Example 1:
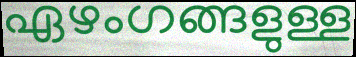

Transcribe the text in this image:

ഏഴംഗങ്ങളുള്ള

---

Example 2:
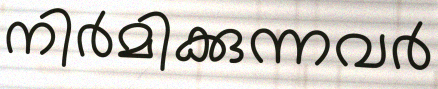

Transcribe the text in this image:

നിർമിക്കുന്നവർ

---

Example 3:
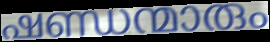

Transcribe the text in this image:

ഷണ്ഡന്മാരും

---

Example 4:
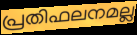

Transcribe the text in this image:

പ്രതിഫലനമല്ല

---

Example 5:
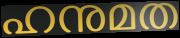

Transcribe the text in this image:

ഹനുമത